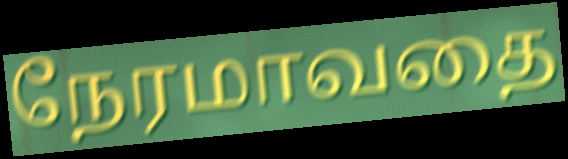
நேரமாவதை